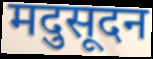
मदुसूदन